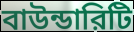
বাউন্ডারিটি